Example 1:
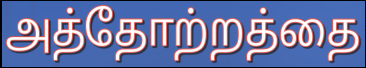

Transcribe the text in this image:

அத்தோற்றத்தை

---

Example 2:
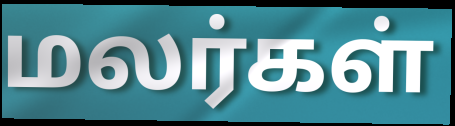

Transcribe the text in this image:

மலர்கள்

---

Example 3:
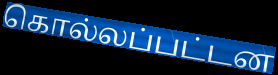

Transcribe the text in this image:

கொல்லப்பட்டன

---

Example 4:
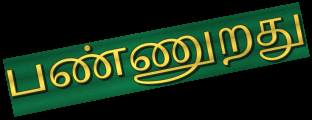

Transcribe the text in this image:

பண்ணுறது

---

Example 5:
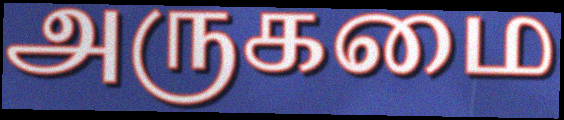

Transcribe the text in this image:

அருகமை